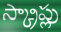
స్క్రాప్లు